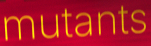
mutants